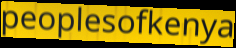
peoplesofkenya